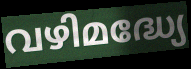
വഴിമദ്ധ്യേ